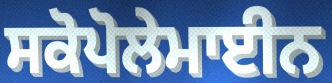
ਸਕੋਪੋਲੇਮਾਈਨ